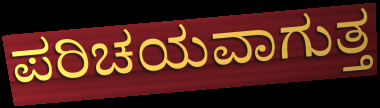
ಪರಿಚಯವಾಗುತ್ತ